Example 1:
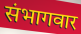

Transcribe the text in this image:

संभागवार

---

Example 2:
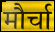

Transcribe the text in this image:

मौर्चा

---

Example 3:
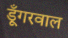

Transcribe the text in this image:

डूँगरवाल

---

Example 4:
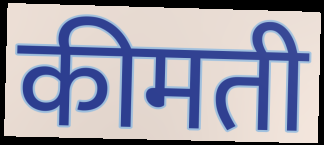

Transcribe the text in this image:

कीमती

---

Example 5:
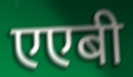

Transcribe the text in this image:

एएबी